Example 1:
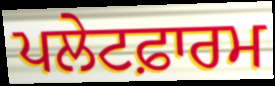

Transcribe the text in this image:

ਪਲੇਟਫ਼ਾਰਮ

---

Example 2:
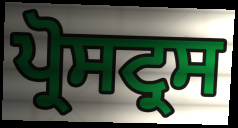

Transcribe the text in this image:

ਪ੍ਰੋਸਟ੍ਰਸ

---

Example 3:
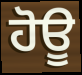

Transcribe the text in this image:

ਹੋਊ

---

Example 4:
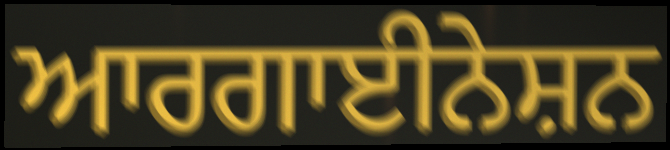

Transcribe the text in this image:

ਆਰਗਾਈਨੇਸ਼ਨ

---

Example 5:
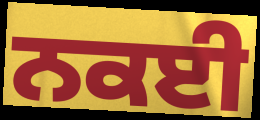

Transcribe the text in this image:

ਨਕਈ